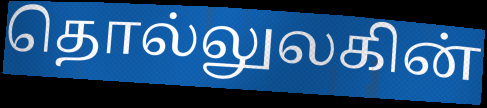
தொல்லுலகின்